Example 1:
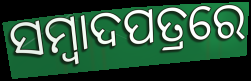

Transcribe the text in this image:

ସମ୍ୱାଦପତ୍ରରେ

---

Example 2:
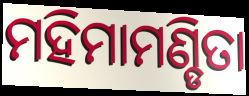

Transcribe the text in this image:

ମହିମାମଣ୍ଡିତା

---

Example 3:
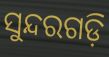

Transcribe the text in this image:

ସୁନ୍ଦରଗଡ଼ି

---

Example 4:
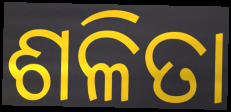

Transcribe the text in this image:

ଶଳିତା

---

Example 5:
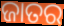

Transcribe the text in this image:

ଜାତର